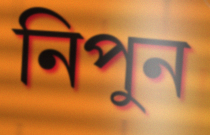
নিপুন